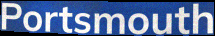
Portsmouth